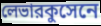
লেভারকুসেনে